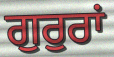
ਗੁਰੁਰਾਂ